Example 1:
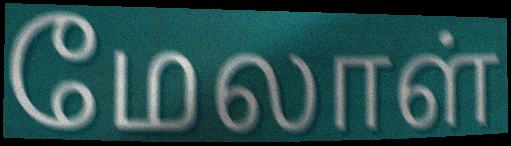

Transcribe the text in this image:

மேலாள்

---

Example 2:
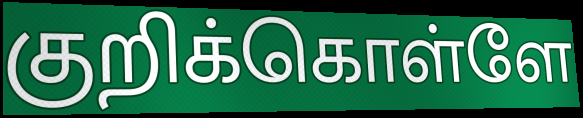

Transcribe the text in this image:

குறிக்கொள்ளே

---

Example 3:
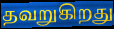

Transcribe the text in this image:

தவறுகிறது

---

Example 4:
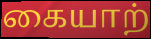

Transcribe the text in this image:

கையாற்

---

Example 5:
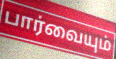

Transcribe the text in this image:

பார்வையும்